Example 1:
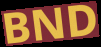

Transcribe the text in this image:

BND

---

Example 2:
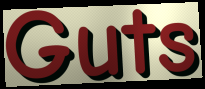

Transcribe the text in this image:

Guts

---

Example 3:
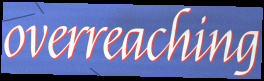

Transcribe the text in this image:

overreaching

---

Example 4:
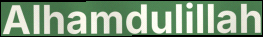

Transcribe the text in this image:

Alhamdulillah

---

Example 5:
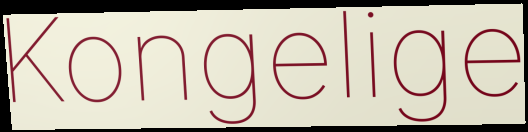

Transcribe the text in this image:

Kongelige